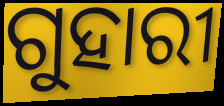
ଗୁହାରୀ